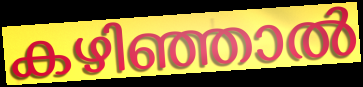
കഴിഞ്ഞാൽ